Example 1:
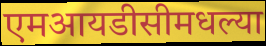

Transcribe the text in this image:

एमआयडीसीमधल्या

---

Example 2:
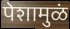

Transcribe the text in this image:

पेशामुळं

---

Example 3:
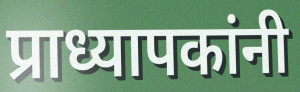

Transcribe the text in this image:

प्राध्यापकांनी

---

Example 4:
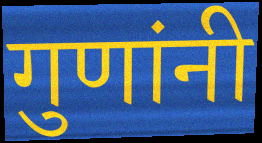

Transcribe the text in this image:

गुणांनी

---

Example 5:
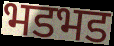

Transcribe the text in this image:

भडभड